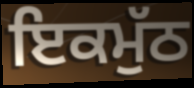
ਇਕਮੁੱਠ